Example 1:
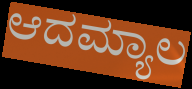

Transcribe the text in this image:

ಆದಮ್ಯಾಲ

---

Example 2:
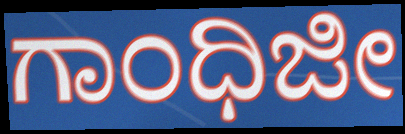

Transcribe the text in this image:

ಗಾಂಧಿಜೀ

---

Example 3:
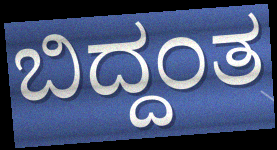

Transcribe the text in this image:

ಬಿದ್ದಂತ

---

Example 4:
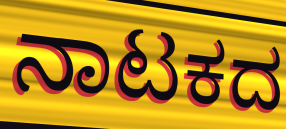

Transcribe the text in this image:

ನಾಟಕದ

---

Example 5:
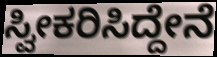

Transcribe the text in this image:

ಸ್ವೀಕರಿಸಿದ್ದೇನೆ